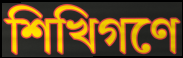
শিখিগণে